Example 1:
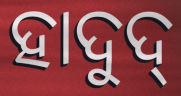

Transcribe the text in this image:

ହାଦୁଦ୍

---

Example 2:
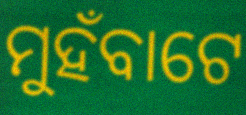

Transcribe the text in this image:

ମୁହଁବାଟେ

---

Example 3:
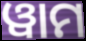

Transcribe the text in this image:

ୱାମ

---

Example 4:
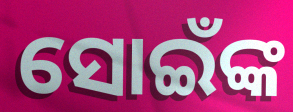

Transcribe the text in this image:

ସୋଇଁଙ୍କ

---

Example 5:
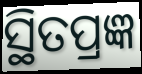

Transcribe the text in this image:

ସ୍ଥିତପ୍ରଜ୍ଞ